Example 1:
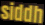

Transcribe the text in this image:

siddh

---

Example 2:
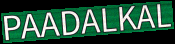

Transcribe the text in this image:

PAADALKAL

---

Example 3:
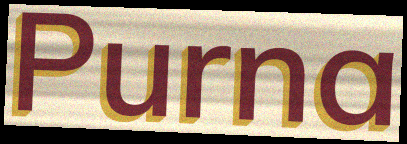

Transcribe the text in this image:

Purna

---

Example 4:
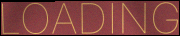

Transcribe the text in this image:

LOADING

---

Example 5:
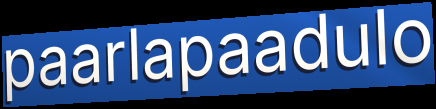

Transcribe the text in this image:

paarlapaadulo